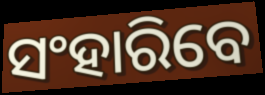
ସଂହାରିବେ